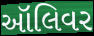
ઑલિવર